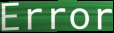
Error